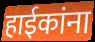
हाईकांना